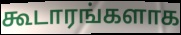
கூடாரங்களாக